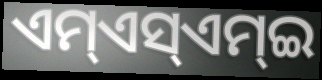
ଏମ୍ଏସ୍ଏମ୍ଇ